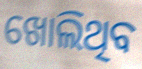
ଖୋଲିଥିବ